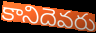
కానిదెవరు